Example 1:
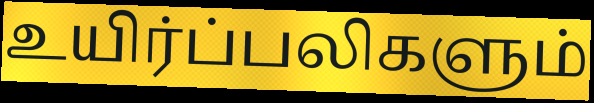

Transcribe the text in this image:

உயிர்ப்பலிகளும்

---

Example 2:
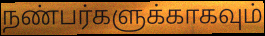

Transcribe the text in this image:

நண்பர்களுக்காகவும்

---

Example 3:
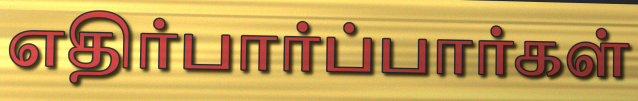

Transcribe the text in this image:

எதிர்பார்ப்பார்கள்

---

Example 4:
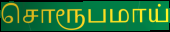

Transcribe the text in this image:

சொரூபமாய்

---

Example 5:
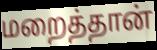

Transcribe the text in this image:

மறைத்தான்